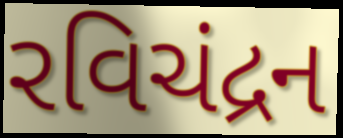
રવિચંદ્રન